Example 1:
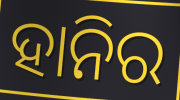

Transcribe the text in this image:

ହାନିର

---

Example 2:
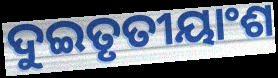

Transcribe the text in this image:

ଦୁଇତୃତୀୟାଂଶ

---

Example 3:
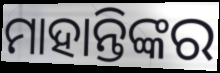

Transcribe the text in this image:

ମାହାନ୍ତିଙ୍କର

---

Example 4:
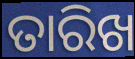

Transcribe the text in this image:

ତାରିଖ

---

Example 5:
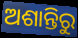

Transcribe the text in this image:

ଅଶାନ୍ତିରୁ